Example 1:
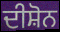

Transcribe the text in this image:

ਦੀਸ਼ੋਨ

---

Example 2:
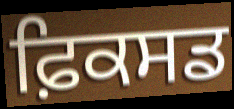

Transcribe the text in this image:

ਫ਼ਿਕਸਡ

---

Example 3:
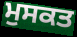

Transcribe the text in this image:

ਮੁਸਕਤ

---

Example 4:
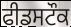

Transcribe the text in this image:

ਫੀਡਸਟੌਕ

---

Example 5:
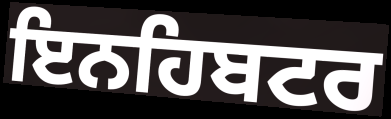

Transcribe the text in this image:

ਇਨਹਿਬਟਰ